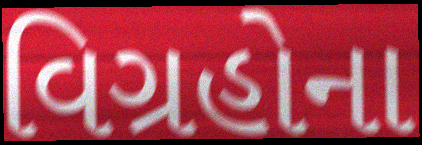
વિગ્રહોના